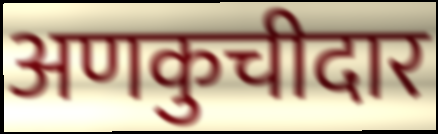
अणकुचीदार